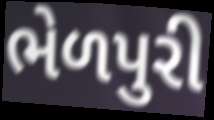
ભેળપુરી